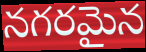
నగరమైన